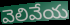
వెలివేయ